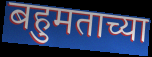
बहुमताच्या